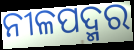
ନୀଳପଦ୍ମର